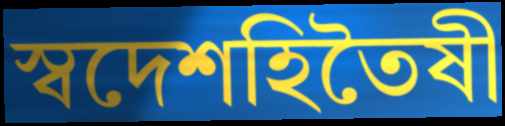
স্বদেশহিতৈষী